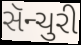
સૅન્ચુરી